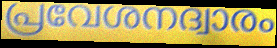
പ്രവേശനദ്വാരം